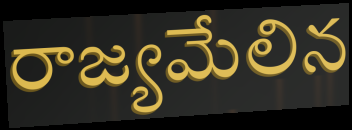
రాజ్యమేలిన